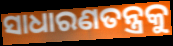
ସାଧାରଣତନ୍ତ୍ରକୁ